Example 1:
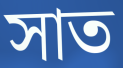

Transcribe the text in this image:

সাত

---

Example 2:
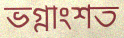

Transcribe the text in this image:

ভগ্নাংশত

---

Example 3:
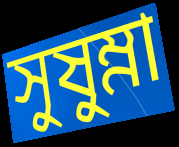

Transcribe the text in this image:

সুষুম্না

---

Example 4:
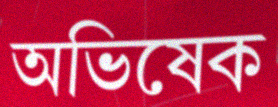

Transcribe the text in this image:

অভিষেক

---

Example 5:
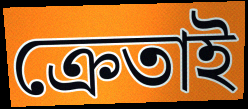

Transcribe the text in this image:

ক্ৰেতাই